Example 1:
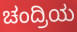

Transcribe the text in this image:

ಚಂದ್ರಿಯ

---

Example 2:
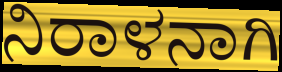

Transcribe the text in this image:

ನಿರಾಳನಾಗಿ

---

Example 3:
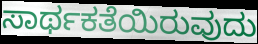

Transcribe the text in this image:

ಸಾರ್ಥಕತೆಯಿರುವುದು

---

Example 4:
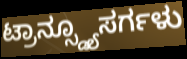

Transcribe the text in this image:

ಟ್ರಾನ್ಸ್ಡ್ಯೂಸರ್ಗಳು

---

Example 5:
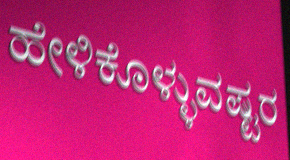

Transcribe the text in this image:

ಹೇಳಿಕೊಳ್ಳುವಷ್ಟರ